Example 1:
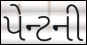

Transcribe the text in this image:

પેન્ટની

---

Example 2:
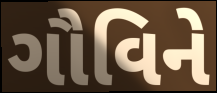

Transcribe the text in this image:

ગૌવિને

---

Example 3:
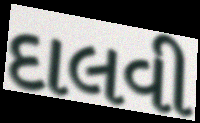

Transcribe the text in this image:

દાલવી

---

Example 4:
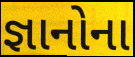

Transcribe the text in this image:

જ્ઞાનોના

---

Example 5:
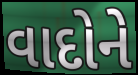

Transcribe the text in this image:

વાદોને